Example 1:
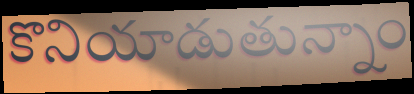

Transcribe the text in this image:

కొనియాడుతున్నాం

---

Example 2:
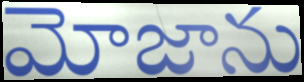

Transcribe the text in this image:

మోజాను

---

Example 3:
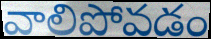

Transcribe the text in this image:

వాలిపోవడం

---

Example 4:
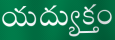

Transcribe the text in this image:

యద్యుక్తం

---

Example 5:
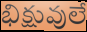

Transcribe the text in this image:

భిక్షువులే